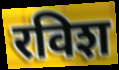
रविश